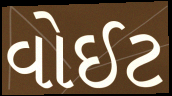
વોઈટ